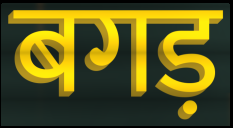
बगड़